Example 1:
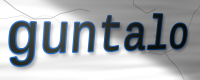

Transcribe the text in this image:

guntalo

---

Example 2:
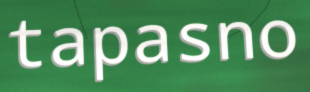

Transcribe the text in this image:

tapasno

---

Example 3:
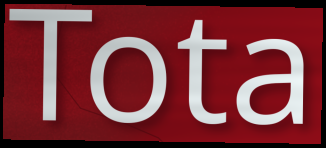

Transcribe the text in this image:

Tota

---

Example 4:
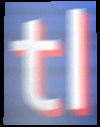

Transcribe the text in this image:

tl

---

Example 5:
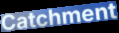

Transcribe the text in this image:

Catchment